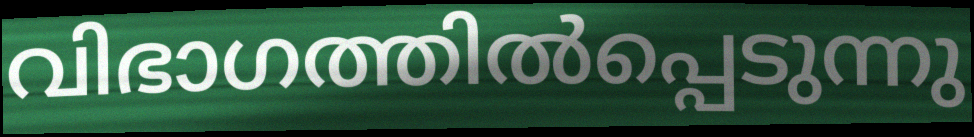
വിഭാഗത്തിൽപ്പെടുന്നു